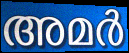
അമർ